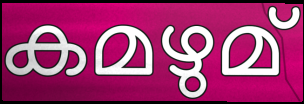
കമഴുമ്